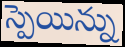
స్పెయిన్ను